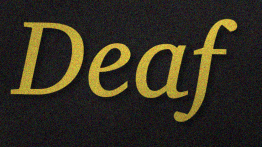
Deaf